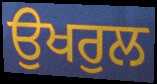
ਉਖਰੁਲ